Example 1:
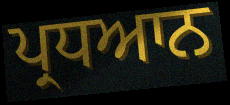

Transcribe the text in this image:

ਪ੍ਰਧਆਨ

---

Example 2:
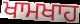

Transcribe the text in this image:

ਖਾਮਖਾਹ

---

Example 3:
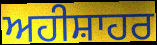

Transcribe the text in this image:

ਅਹੀਸ਼ਾਹਰ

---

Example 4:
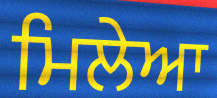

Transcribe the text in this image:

ਮਿਲੇਆ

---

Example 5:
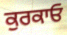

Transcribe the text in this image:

ਕੁਰਕਾਓ